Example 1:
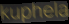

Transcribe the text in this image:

kuphela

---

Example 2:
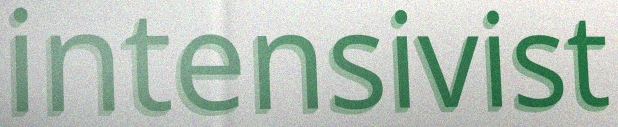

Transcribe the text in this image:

intensivist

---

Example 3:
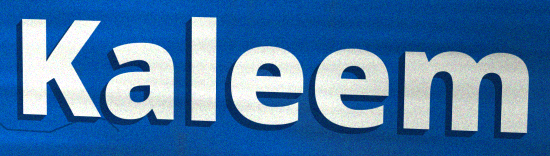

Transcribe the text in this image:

Kaleem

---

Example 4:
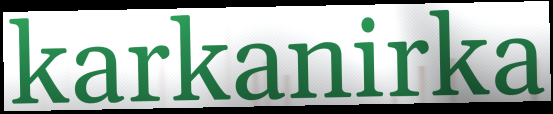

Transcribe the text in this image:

karkanirka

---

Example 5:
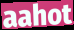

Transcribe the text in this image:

aahot